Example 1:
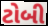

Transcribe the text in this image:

ટોબી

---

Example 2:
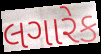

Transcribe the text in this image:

લગારેક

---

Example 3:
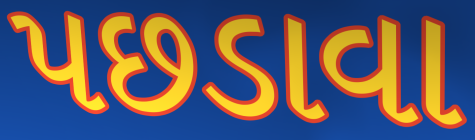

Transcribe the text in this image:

પછડાવા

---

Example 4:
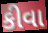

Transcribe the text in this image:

કીવા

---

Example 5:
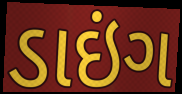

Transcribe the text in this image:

ડાઇંગ